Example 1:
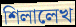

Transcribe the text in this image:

শিলালেখ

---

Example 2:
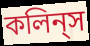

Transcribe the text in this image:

কলিন্‌স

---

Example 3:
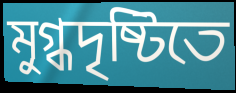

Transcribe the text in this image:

মুগ্ধদৃষ্টিতে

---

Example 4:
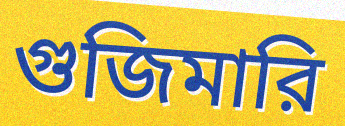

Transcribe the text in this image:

গুজিমারি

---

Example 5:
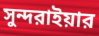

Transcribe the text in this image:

সুন্দরাইয়ার